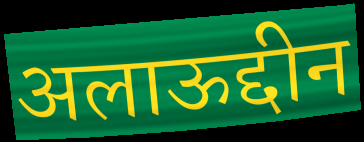
अलाऊद्दीन